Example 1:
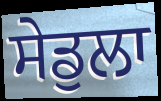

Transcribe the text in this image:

ਸੇਡੁਲਾ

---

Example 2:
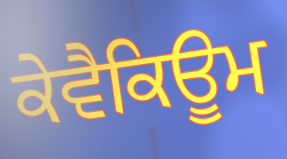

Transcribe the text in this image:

ਕੇਵੈਕਿਊਮ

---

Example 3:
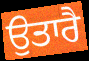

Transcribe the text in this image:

ਉਤਾਰੈ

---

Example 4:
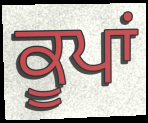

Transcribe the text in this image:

ਕੂਪਾਂ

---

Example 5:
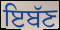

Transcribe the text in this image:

ਇਬੱਣ